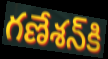
గణేశన్‍కి